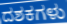
ದಶಕಗಳು